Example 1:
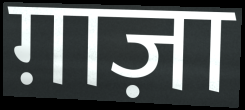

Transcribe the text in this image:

ग़ाज़ा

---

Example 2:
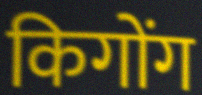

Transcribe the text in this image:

किगोंग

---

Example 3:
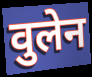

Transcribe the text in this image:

वुलेन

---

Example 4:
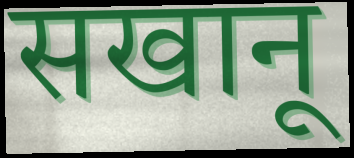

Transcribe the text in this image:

सखानू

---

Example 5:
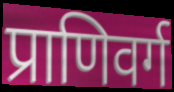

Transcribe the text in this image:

प्राणिवर्ग